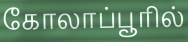
கோலாப்பூரில்